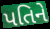
પતિને